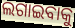
ଲଗାଇବାକୁ